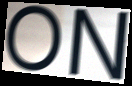
ON